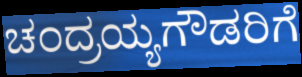
ಚಂದ್ರಯ್ಯಗೌಡರಿಗೆ